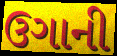
ઉગાની